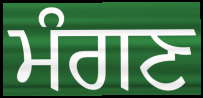
ਮੰਗਣ